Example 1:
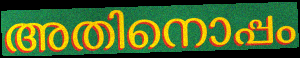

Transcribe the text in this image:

അതിനൊപ്പം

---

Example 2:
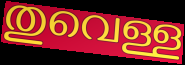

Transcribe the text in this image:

തുവെള്ള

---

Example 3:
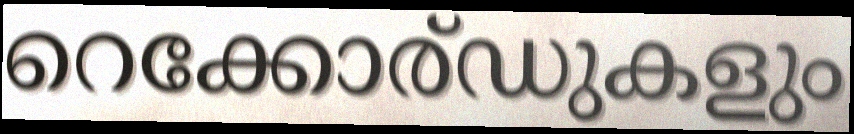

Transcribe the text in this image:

റെക്കോര്ഡുകളും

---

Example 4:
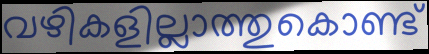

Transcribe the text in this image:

വഴികളില്ലാത്തുകൊണ്ട്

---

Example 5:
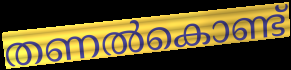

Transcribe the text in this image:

തണൽകൊണ്ട്